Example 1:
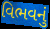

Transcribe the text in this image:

વિભવનું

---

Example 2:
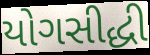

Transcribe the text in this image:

યોગસીદ્ધી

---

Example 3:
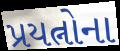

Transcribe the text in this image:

પ્રયત્નોના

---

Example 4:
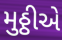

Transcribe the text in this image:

મુઠ્ઠીએ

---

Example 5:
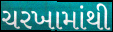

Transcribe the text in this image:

ચરખામાંથી